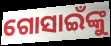
ଗୋସାଇଁଙ୍କୁ